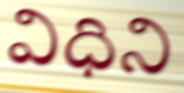
విధిని